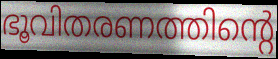
ഭൂവിതരണത്തിന്റെ